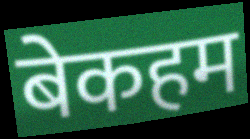
बेकहम